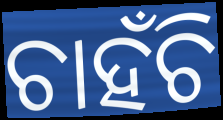
ଚାହଁଚି